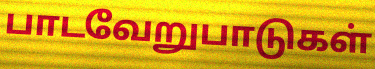
பாடவேறுபாடுகள்